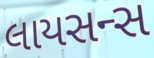
લાયસન્સ